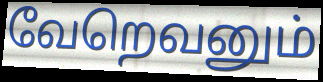
வேறெவனும்